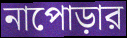
নাপোড়ার